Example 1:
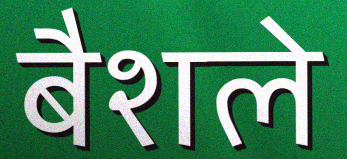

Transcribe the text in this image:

बैशले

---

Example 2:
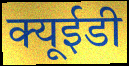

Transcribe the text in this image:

क्यूईडी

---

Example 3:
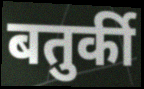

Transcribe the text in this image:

बतुर्की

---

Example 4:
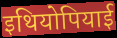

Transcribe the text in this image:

इथियोपियाई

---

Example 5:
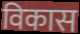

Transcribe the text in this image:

विकास